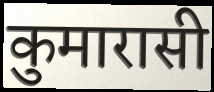
कुमारासी